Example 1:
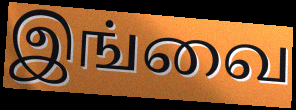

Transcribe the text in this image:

இங்வை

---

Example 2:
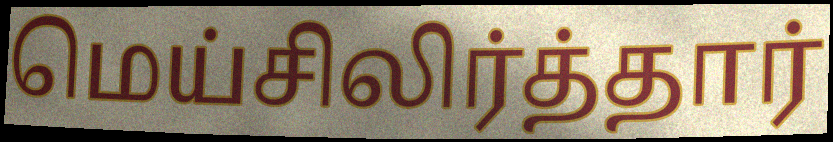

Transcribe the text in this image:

மெய்சிலிர்த்தார்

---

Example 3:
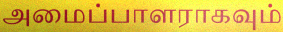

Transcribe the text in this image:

அமைப்பாளராகவும்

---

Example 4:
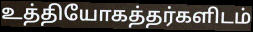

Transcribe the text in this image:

உத்தியோகத்தர்களிடம்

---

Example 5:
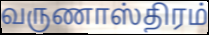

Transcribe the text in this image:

வருணாஸ்திரம்